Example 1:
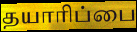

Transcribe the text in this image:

தயாரிப்பை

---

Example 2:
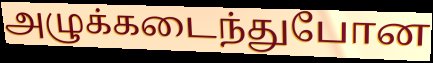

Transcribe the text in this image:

அழுக்கடைந்துபோன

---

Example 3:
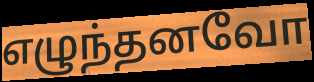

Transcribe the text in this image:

எழுந்தனவோ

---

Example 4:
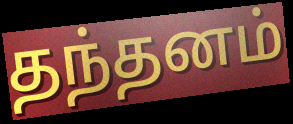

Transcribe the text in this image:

தந்தனம்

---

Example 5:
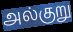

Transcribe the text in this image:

அல்குறு